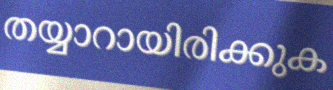
തയ്യാറായിരിക്കുക